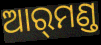
ଆର୍‌ମଣ୍ଡ